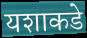
यशाकडे